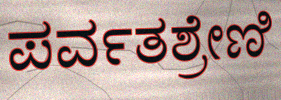
ಪರ್ವತಶ್ರೇಣಿ